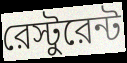
রেস্টুরেন্ট